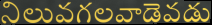
నిలువగలవాడెవడు